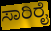
ಸಾರಿರೈ